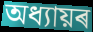
অধ্যায়ৰ